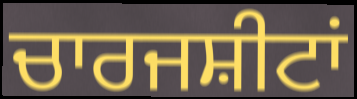
ਚਾਰਜਸ਼ੀਟਾਂ